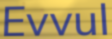
Evvul